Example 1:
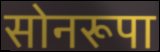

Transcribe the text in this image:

सोनरूपा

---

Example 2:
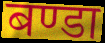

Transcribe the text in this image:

बण्डा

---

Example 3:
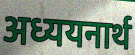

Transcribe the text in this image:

अध्ययनार्थ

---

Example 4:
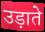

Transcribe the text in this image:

उड़ाते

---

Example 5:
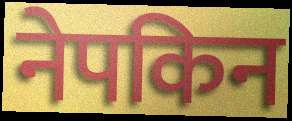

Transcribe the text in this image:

नेपकिन